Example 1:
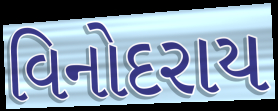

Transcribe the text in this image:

વિનોદરાય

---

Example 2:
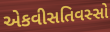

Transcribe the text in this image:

એકવીસતિવસ્સો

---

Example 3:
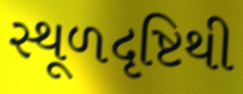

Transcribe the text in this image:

સ્થૂળદૃષ્ટિથી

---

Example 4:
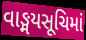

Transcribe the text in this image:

વાઙ્મયસૂચિમાં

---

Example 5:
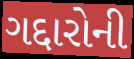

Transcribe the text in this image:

ગદ્દારોની